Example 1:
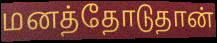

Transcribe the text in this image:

மனத்தோடுதான்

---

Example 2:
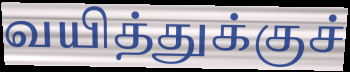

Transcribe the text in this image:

வயித்துக்குச்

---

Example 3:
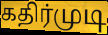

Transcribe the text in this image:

கதிர்முடி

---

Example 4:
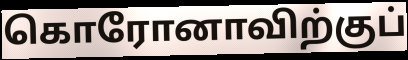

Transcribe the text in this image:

கொரோனாவிற்குப்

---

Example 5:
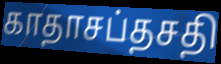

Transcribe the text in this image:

காதாசப்தசதி